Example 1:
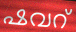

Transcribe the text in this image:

ഷവറ്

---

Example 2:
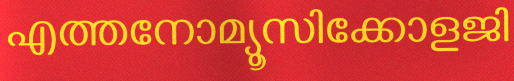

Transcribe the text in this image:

എത്തനോമ്യൂസിക്കോളജി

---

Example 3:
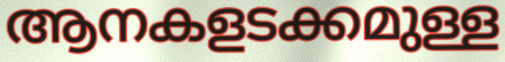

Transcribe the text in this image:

ആനകളടക്കമുള്ള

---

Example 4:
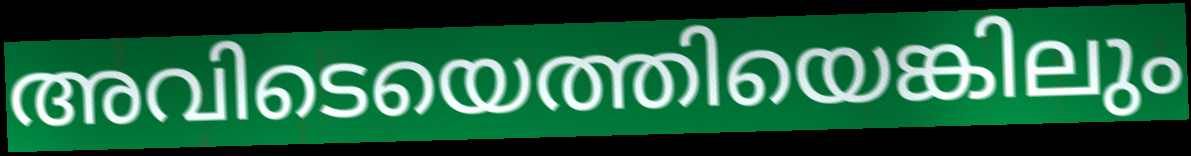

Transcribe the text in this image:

അവിടെയെത്തിയെങ്കിലും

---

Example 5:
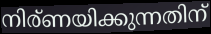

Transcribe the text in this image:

നിര്ണയിക്കുന്നതിന്